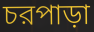
চরপাড়া